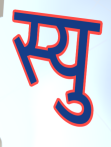
स्यु